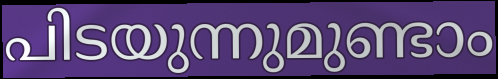
പിടയുന്നുമുണ്ടാം